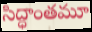
సిద్ధాంతమూ